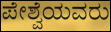
ಪೇಶ್ವೆಯವರು